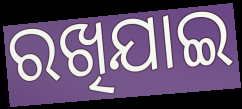
ରଖିଯାଇ